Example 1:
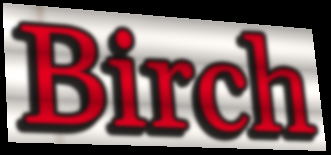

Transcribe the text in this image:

Birch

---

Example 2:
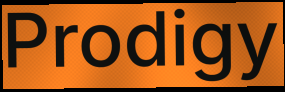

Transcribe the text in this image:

Prodigy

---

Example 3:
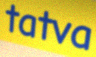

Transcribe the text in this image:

tatva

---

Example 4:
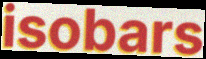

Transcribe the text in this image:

isobars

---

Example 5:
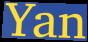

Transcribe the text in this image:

Yan